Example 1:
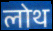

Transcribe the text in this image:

लोथ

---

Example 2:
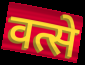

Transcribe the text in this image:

वत्से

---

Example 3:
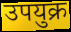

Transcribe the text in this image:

उपयुक्र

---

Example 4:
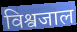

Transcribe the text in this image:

विश्वजाल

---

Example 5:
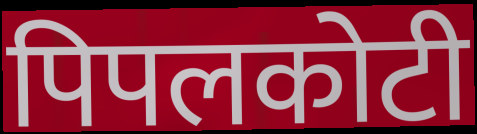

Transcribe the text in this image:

पिपलकोटी